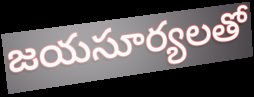
జయసూర్యలతో